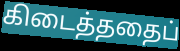
கிடைத்ததைப்